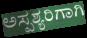
ಅಸ್ಪಶ್ಯರಿಗಾಗಿ